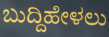
ಬುದ್ದಿಹೇಳಲು